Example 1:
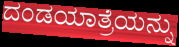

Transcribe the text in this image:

ದಂಡಯಾತ್ರೆಯನ್ನು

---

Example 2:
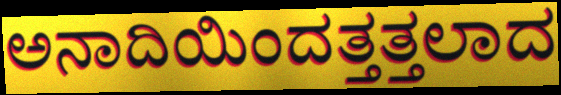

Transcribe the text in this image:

ಅನಾದಿಯಿಂದತ್ತತ್ತಲಾದ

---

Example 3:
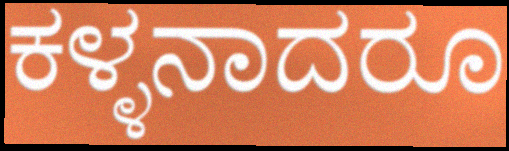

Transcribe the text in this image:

ಕಳ್ಳನಾದರೂ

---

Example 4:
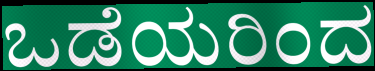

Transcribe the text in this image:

ಒಡೆಯರಿಂದ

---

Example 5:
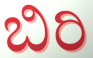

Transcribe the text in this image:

ಬಿರಿ